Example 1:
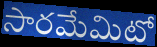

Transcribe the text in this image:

సారమేమిటో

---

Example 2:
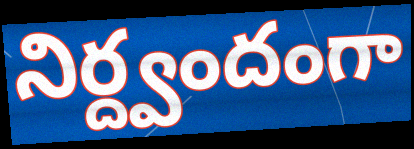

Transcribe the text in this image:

నిర్ద్వందంగా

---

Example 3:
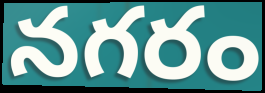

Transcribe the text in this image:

నగరం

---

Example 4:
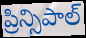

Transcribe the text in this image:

ప్రిన్సిపాల్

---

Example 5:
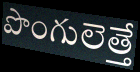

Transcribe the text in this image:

పొంగులెత్తే